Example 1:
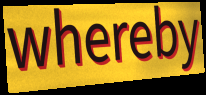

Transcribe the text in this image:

whereby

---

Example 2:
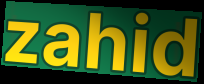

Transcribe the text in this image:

zahid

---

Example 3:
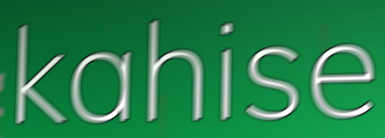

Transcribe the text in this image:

kahise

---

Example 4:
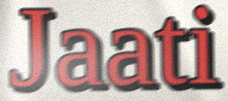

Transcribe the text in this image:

Jaati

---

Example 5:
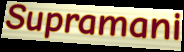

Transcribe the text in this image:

Supramani